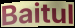
Baitul